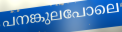
പനങ്കുലപോലെ